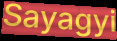
Sayagyi